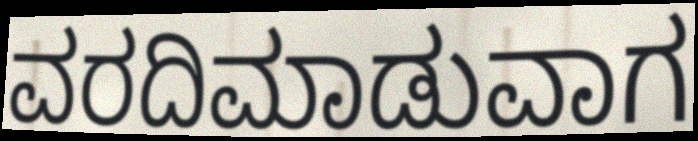
ವರದಿಮಾಡುವಾಗ